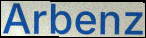
Arbenz